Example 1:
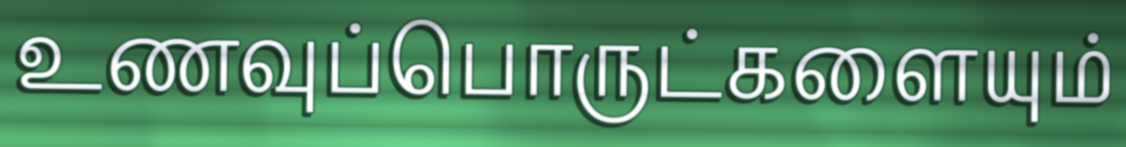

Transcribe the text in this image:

உணவுப்பொருட்களையும்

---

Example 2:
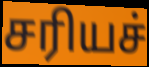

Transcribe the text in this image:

சரியச்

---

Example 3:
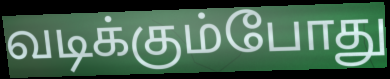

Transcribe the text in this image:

வடிக்கும்போது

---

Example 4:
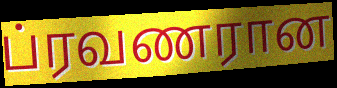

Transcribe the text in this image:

ப்ரவணரான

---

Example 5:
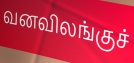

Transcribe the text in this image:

வனவிலங்குச்